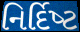
નિર્દિષ્‍ટ